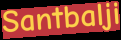
Santbalji